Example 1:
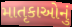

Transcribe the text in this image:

માતૃકાઓનું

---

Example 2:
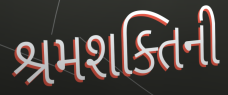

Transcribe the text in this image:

શ્રમશક્તિની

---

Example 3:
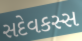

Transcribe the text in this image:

સદેવકસ્સ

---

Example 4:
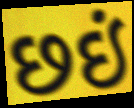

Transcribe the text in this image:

છઇં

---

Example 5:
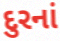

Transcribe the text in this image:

દુરનાં